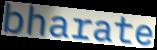
bharate